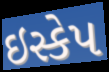
ઇસ્કેપ